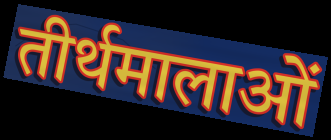
तीर्थमालाओं